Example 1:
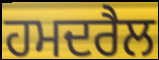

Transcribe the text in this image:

ਹਮਦਰੈਲ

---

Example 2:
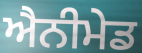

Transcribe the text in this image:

ਐਨੀਮੇਡ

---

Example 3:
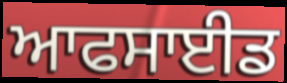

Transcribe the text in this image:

ਆਫਸਾਈਡ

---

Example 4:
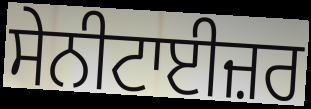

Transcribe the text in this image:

ਸੇਨੀਟਾਈਜ਼ਰ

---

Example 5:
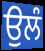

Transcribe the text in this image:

ਉਲੰ